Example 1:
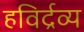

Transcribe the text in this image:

हविर्द्रव्य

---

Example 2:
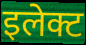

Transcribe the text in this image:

इलेक्ट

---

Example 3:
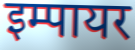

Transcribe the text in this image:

इम्पायर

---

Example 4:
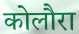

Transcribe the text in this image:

कोलौरा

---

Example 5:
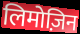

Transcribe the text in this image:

लिमोज़िन